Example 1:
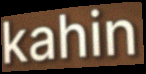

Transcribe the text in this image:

kahin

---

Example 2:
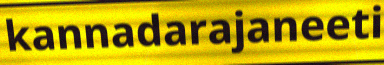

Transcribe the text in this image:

kannadarajaneeti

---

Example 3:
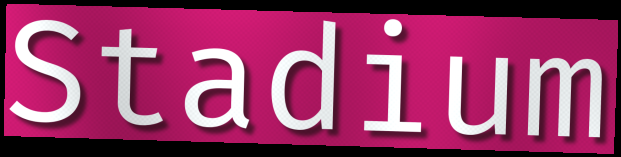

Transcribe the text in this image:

Stadium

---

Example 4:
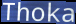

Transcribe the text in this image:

Thoka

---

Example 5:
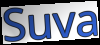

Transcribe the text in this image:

Suva